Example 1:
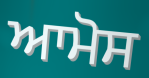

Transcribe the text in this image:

ਆਮੋਸ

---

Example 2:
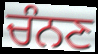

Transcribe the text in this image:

ਚੰਨਣ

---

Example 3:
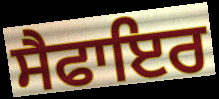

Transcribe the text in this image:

ਸੈਫਾਇਰ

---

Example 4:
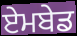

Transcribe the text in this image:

ਏਮਬੇਡ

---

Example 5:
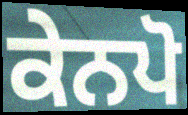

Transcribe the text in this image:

ਕੇਨਪੋ